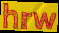
hrw